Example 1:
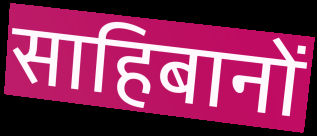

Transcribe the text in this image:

साहिबानों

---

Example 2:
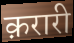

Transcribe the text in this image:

क़रारी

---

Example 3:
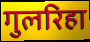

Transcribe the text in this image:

गुलरिहा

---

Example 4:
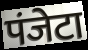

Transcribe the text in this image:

पंजेटा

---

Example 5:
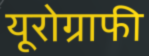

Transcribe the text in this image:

यूरोग्राफी